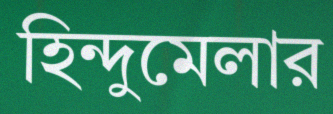
হিন্দুমেলার